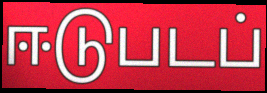
ஈடுபடப்